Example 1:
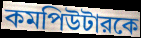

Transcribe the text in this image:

কমপিউটারকে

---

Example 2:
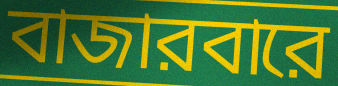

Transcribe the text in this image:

বাজারবারে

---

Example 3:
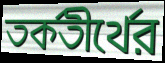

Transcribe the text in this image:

তর্কতীর্থের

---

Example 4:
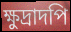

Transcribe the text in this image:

ক্ষুদ্রাদপি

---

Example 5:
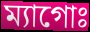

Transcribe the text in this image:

ম্যাগোঃ